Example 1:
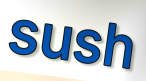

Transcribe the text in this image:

sush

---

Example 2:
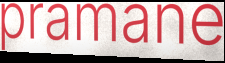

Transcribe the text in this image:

pramane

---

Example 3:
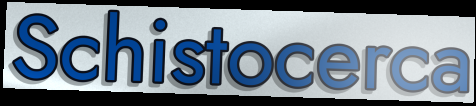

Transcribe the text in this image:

Schistocerca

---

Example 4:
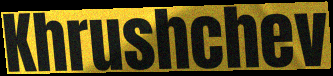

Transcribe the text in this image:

Khrushchev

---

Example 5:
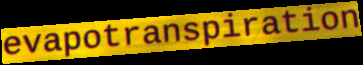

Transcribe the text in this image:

evapotranspiration